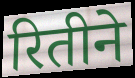
रितीने